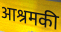
आश्रमकी